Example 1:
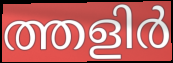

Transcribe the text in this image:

ത്തളിർ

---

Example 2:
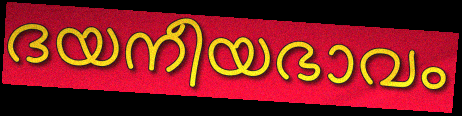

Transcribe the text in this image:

ദയനീയഭാവം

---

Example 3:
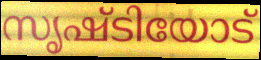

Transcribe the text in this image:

സൃഷ്ടിയോട്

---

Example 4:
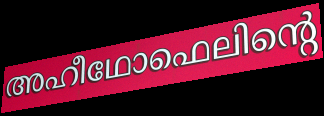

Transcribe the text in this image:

അഹീഥോഫെലിന്റെ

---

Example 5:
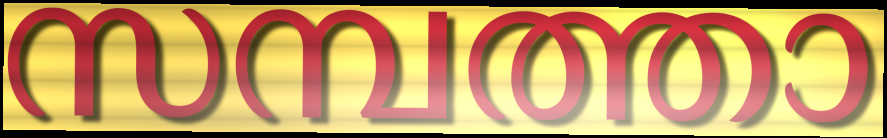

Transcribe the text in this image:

സമ്പത്താ